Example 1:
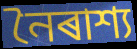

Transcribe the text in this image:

নৈৰাশ্য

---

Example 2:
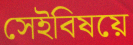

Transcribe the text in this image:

সেইবিষয়ে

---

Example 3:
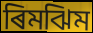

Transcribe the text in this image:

ৰিমঝিম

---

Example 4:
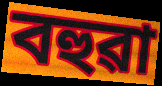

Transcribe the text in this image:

বহুৱা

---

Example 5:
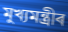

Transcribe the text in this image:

মুখ্যমন্ত্ৰীৰ